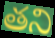
తని